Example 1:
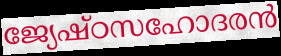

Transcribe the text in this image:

ജ്യേഷ്ഠസഹോദരൻ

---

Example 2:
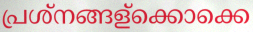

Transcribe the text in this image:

പ്രശ്നങ്ങള്ക്കൊക്കെ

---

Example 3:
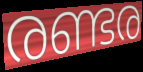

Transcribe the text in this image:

രണ്ടര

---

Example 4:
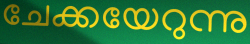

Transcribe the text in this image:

ചേക്കയേറുന്നു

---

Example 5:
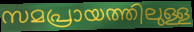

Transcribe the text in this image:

സമപ്രായത്തിലുള്ള